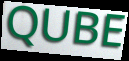
QUBE